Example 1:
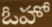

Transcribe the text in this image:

ఓహో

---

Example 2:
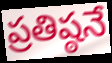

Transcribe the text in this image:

ప్రతిష్ఠనే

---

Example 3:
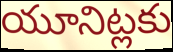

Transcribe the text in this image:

యూనిట్లకు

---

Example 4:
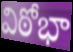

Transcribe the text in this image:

విఠోభా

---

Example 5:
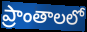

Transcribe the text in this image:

ప్రాంతాలలో